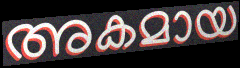
അകമായ